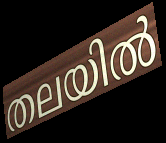
തലയിൽ